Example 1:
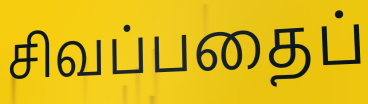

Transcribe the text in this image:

சிவப்பதைப்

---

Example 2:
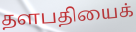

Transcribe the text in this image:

தளபதியைக்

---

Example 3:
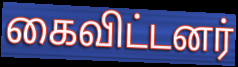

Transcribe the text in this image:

கைவிட்டனர்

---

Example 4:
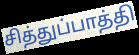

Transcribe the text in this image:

சித்துப்பாத்தி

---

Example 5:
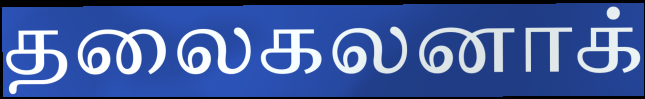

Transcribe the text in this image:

தலைகலனாக்